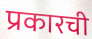
प्रकारची